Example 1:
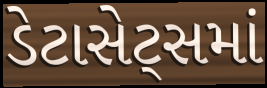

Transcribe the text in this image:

ડેટાસેટ્સમાં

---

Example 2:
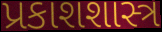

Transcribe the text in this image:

પ્રકાશશાસ્ત્ર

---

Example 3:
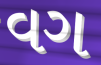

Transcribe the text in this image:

વગ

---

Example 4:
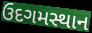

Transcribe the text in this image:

ઉદગમસ્થાન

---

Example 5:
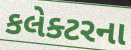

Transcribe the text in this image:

કલેક્ટરના